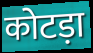
कोटड़ा